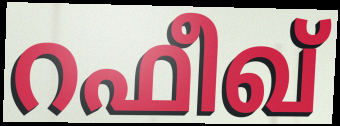
റഫീഖ്